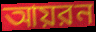
আয়রন